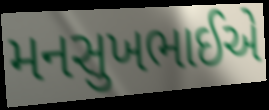
મનસુખભાઈએ